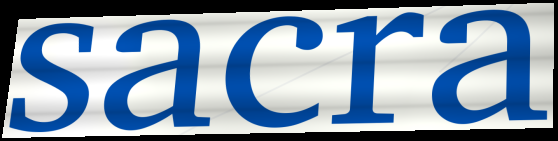
sacra